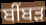
ਬੀੰਬੜ